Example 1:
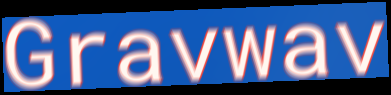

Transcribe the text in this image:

Gravwav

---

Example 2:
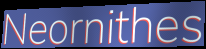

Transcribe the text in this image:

Neornithes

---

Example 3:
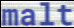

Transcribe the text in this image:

malt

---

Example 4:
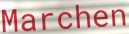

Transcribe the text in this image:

Marchen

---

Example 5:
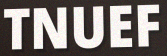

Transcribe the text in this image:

TNUEF